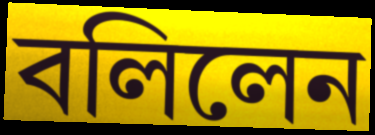
বলিলেন